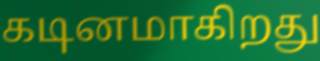
கடினமாகிறது